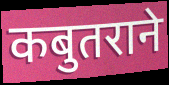
कबुतराने